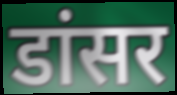
डांसर